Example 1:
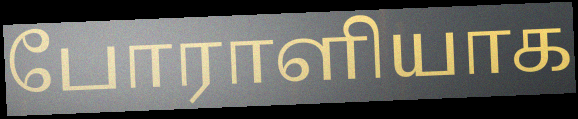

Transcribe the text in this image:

போராளியாக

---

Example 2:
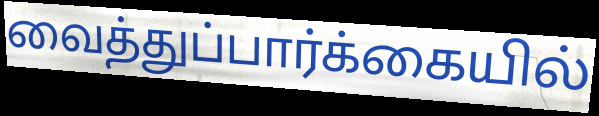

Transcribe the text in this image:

வைத்துப்பார்க்கையில்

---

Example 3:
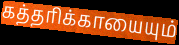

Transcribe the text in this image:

கத்தரிக்காயையும்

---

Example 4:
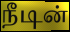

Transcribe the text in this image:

நீடின்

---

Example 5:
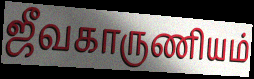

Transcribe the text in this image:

ஜீவகாருணியம்